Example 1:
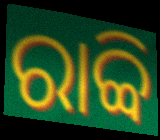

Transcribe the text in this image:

ରାବ୍ବି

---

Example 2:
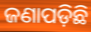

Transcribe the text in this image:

ଜଣାପଡ଼ିଛି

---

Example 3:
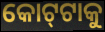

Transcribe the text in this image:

କୋଟ୍‌ଟାକୁ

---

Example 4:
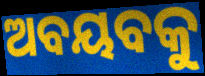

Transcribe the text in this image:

ଅବୟବକୁ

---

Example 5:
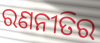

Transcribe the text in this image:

ରଣନୀତିର